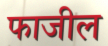
फाजील